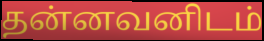
தன்னவனிடம்